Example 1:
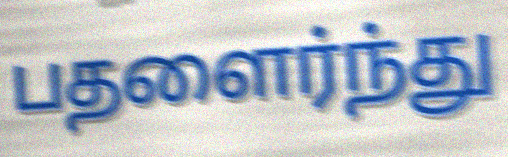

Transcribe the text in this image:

பதளைர்ந்து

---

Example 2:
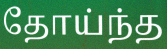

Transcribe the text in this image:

தோய்ந்த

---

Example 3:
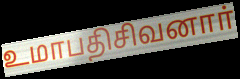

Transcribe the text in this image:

உமாபதிசிவனார்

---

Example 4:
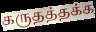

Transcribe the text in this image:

கருதத்தக்க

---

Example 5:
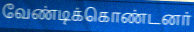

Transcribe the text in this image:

வேண்டிக்கொண்டனர்